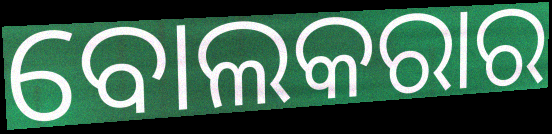
ବୋଲକରାର